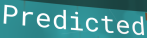
Predicted